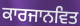
ਕਾਰਜਾਨਵਿਤ